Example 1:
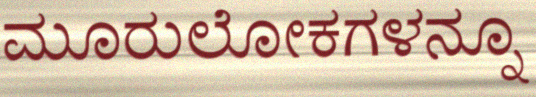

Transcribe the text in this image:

ಮೂರುಲೋಕಗಳನ್ನೂ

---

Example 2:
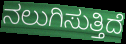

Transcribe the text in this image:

ನಲುಗಿಸುತ್ತಿದೆ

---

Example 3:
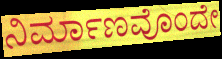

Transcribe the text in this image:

ನಿರ್ಮಾಣವೊಂದೇ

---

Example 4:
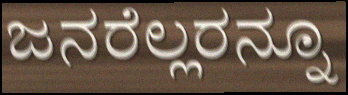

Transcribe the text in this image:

ಜನರೆಲ್ಲರನ್ನೂ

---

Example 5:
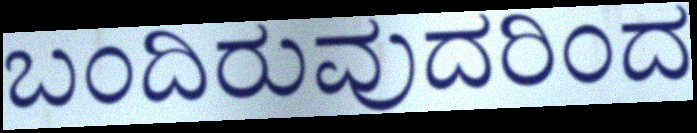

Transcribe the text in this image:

ಬಂದಿರುವುದರಿಂದ